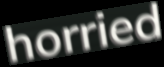
horried